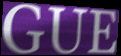
GUE